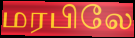
மரபிலே